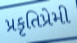
પ્રકૃતિપ્રેમી